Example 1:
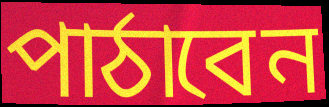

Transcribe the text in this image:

পাঠাবেন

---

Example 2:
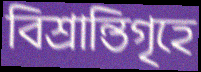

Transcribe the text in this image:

বিশ্রান্তিগৃহে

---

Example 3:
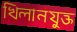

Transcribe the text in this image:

খিলানযুক্ত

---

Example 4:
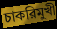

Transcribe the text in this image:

চাকরিমুখী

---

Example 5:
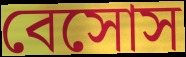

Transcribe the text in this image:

বেসোস